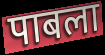
पाबला